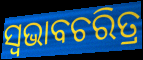
ସ୍ବଭାବଚରିତ୍ର